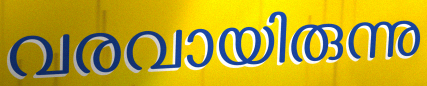
വരവായിരുന്നു